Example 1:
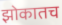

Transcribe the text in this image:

झोकातच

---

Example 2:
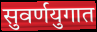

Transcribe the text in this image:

सुवर्णयुगात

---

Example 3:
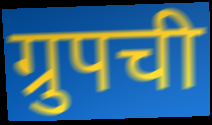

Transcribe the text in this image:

ग्रुपची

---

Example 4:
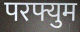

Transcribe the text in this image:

परफ्युम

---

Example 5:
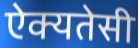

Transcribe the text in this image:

ऐक्यतेसी